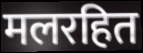
मलरहित